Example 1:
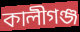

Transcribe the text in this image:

কালীগঞ্জ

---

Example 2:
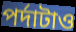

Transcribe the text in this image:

পর্দাটাও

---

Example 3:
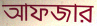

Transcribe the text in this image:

আফজার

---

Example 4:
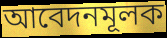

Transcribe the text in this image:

আবেদনমূলক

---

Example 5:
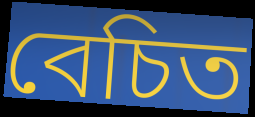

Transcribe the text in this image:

বেচিত